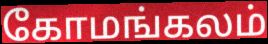
கோமங்கலம்